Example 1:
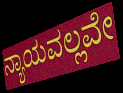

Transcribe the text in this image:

ನ್ಯಾಯವಲ್ಲವೇ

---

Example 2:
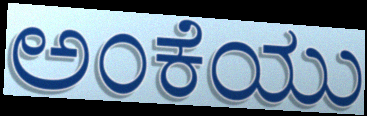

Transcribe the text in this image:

ಅಂಕೆಯು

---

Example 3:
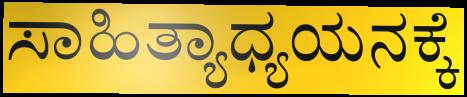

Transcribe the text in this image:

ಸಾಹಿತ್ಯಾಧ್ಯಯನಕ್ಕೆ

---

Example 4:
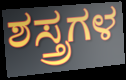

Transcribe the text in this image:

ಶಸ್ತ್ರಗಳ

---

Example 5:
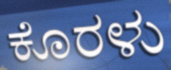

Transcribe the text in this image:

ಕೊರಳು